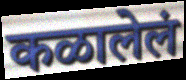
कळालेलं